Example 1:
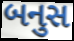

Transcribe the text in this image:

બનુસ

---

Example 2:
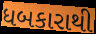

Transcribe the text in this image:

ધબકારાથી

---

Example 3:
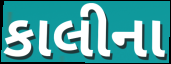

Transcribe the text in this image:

કાલીના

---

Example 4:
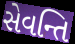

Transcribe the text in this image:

સેવન્તિ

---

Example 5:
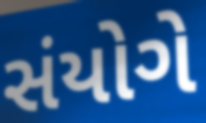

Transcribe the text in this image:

સંયોગે